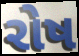
રોષ